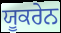
ਯੂਕਰੇਨ